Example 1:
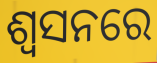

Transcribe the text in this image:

ଶ୍ଵସନରେ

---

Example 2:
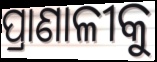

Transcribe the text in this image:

ପ୍ରାଣାଳୀକୁ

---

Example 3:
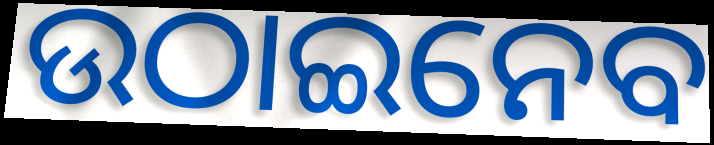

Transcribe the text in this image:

ଉଠାଇନେବ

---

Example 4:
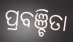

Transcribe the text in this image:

ପ୍ରବଞ୍ଚିତା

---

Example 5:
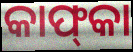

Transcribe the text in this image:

କାଫ୍‌କା